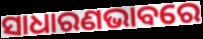
ସାଧାରଣଭାବରେ